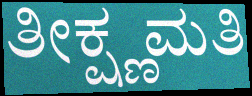
ತೀಕ್ಷ್ಣಮತಿ